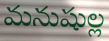
మనుషుల్ల